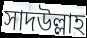
সাদউল্লাহ